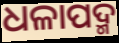
ଧଳାପଦ୍ମ